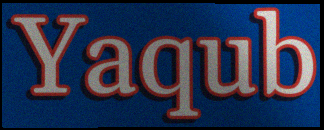
Yaqub